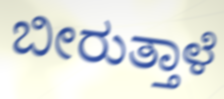
ಬೀರುತ್ತಾಳೆ